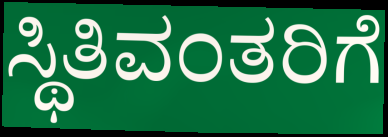
ಸ್ಥಿತಿವಂತರಿಗೆ